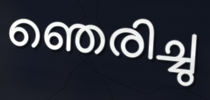
ഞെരിച്ചു